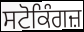
ਸਟੋਕਿੰਗਜ਼